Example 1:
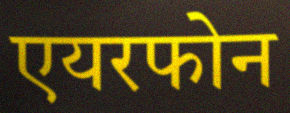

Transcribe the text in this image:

एयरफोन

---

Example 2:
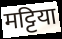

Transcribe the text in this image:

मट्टिया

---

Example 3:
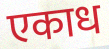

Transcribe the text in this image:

एकाध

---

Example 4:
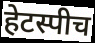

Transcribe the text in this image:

हेटस्पीच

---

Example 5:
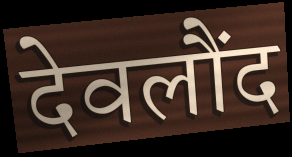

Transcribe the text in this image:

देवलौंद